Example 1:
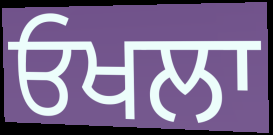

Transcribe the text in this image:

ਓਖਲਾ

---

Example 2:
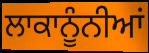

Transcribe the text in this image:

ਲਾਕਾਨੂੰਨੀਆਂ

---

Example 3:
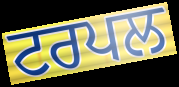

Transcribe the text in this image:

ਟਰਪਲ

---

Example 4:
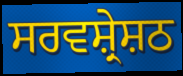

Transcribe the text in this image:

ਸਰਵਸ਼੍ਰੇਸ਼ਠ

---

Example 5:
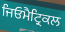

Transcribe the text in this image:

ਜਿਓਮੈਟ੍ਰਿਕਲ